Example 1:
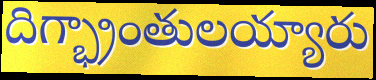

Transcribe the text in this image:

దిగ్భ్రాంతులయ్యారు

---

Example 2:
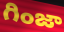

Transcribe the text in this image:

గింజా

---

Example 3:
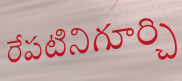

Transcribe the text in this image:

రేపటినిగూర్చి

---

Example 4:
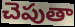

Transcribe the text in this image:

చెపుతా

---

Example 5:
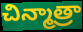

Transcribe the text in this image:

చిన్మాత్రా